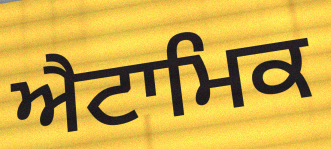
ਐਟਾਮਿਕ